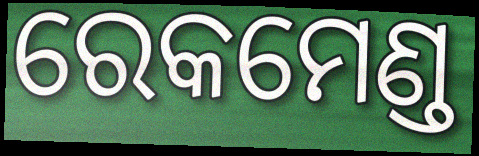
ରେକମେଣ୍ଡ